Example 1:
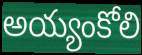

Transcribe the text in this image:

అయ్యంకోలి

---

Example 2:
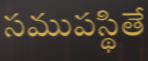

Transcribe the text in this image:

సముపస్థితే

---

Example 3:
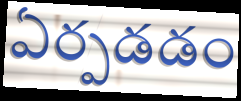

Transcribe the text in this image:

ఏర్పడడం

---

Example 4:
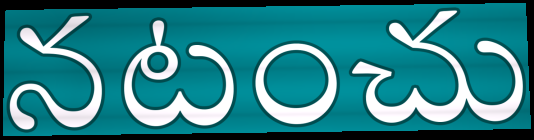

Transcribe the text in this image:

నటంచు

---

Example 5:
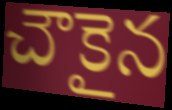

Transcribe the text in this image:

చౌకైన